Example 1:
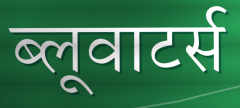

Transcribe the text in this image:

ब्लूवाटर्स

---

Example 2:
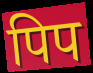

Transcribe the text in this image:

पिप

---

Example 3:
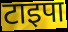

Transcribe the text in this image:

टाइपा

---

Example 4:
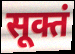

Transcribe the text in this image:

सूक्तं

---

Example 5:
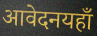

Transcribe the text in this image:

आवेदनयहाँ